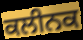
ਕਲੀਨਕ